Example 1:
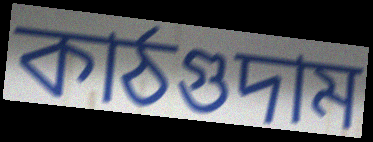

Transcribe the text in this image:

কাঠগুদাম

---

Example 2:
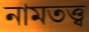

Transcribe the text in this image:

নামতত্ত্ব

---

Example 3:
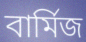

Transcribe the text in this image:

বার্মিজ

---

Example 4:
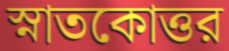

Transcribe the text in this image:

স্নাতকোত্তর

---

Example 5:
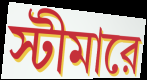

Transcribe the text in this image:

স্টীমারে